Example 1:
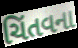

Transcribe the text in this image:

ચિંતવના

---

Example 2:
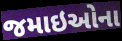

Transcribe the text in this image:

જમાઇઓના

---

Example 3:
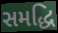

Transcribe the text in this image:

સમદ્ધિ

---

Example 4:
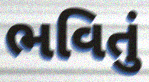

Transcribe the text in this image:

ભવિતું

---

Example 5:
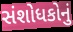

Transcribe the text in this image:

સંશોધકોનું